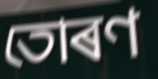
তোৰণ